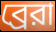
ব্রেরা